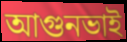
আগুনভাই